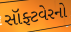
સૉફ્ટવેરનો